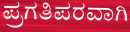
ಪ್ರಗತಿಪರವಾಗಿ